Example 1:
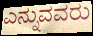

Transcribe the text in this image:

ಎನ್ನುವವರು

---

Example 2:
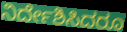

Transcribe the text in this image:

ನಿರ್ದೇಶಿಸಿದರೂ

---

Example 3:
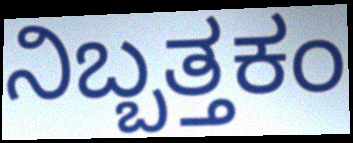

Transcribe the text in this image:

ನಿಬ್ಬತ್ತಕಂ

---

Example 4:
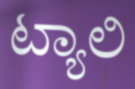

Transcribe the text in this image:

ಟ್ಯಾಲಿ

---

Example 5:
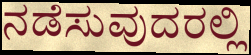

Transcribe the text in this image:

ನಡೆಸುವುದರಲ್ಲಿ